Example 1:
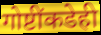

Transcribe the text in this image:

गोष्टींकडेही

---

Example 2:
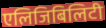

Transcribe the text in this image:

एलिजिबिलिटी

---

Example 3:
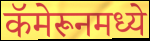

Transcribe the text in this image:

कॅमेरूनमध्ये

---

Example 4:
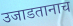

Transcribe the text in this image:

उजाडतानाच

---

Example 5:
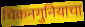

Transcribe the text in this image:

चिकनगुनियाचा